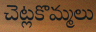
చెట్లకొమ్మలు